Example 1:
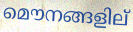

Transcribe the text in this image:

മൌനങ്ങളില്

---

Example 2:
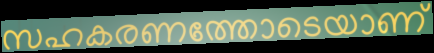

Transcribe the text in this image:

സഹകരണത്തോടെയാണ്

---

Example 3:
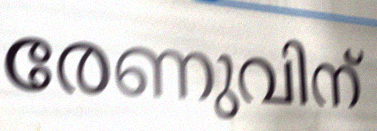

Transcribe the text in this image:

രേണുവിന്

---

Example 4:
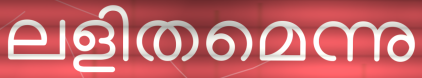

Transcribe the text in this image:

ലളിതമെന്നു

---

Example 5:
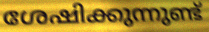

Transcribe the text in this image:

ശേഷിക്കുന്നുണ്ട്